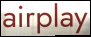
airplay